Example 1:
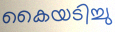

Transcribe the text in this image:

കൈയടിച്ചു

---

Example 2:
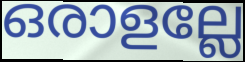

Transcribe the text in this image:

ഒരാളല്ലേ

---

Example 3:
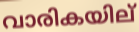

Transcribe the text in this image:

വാരികയില്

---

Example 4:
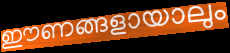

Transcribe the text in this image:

ഈണങ്ങളായാലും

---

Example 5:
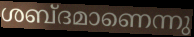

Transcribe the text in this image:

ശബ്ദമാണെന്നു